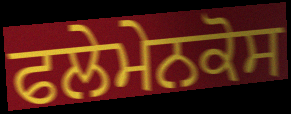
ਫਲੇਮੇਨਕੋਸ